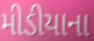
મીડીયાના